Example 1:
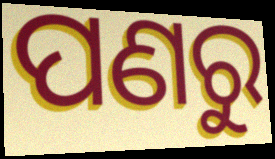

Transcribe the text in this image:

ପଣରୁ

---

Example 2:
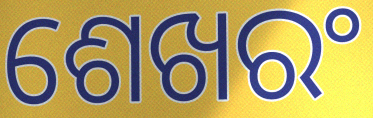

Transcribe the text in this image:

ଶେଖରଂ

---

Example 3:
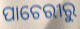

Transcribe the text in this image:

ପାଚେରୀରୁ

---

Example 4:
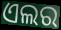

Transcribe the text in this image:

ଏଲର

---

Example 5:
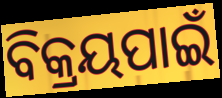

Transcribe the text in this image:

ବିକ୍ରୟପାଇଁ